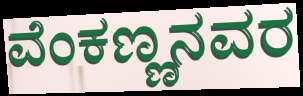
ವೆಂಕಣ್ಣನವರ